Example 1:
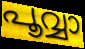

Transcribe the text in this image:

പൂവ്വാ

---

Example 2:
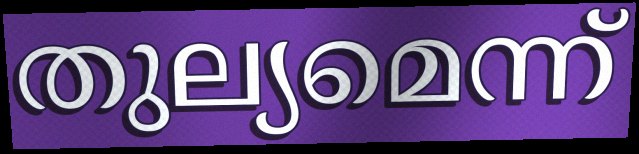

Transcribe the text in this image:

തുല്യമെന്ന്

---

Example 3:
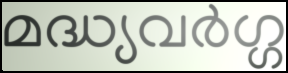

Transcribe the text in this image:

മദ്ധ്യവർഗ്ഗ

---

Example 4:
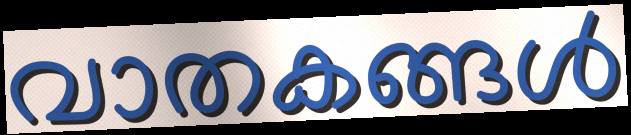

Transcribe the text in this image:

വാതകങ്ങൾ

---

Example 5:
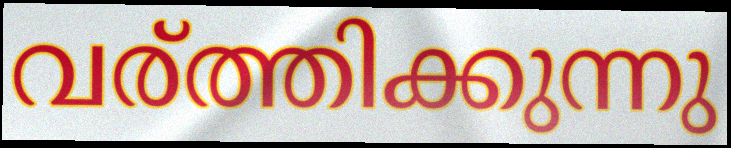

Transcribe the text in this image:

വര്ത്തിക്കുന്നു